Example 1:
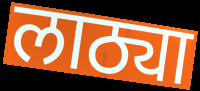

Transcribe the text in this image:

लाठ्या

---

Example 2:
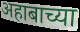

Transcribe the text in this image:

अहाबाच्या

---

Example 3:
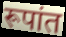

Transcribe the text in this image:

रूपांत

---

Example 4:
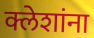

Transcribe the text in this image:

क्लेशांना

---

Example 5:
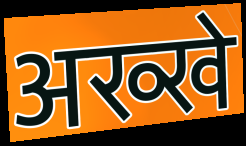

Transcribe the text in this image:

अख्खे